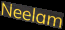
Neelam